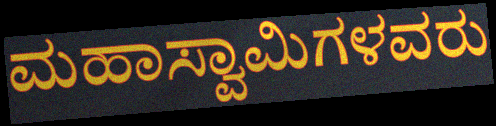
ಮಹಾಸ್ವಾಮಿಗಳವರು